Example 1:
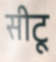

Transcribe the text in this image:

सीटू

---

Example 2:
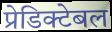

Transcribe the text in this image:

प्रेडिक्टेबल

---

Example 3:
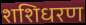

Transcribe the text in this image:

शशिधरण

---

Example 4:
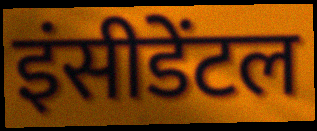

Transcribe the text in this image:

इंसीडेंटल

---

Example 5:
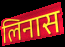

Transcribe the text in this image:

लिनास